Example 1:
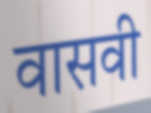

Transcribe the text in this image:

वासवी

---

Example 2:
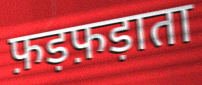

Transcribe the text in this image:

फ़ड़फ़ड़ाता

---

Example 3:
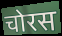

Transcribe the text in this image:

चोरस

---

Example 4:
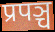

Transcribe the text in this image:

प्रपञ्च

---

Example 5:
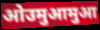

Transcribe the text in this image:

ओउमुआमुआ